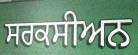
ਸਰਕਸੀਅਨ